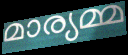
മാര്യമ്മ